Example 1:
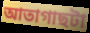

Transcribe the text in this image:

আতাগাছটা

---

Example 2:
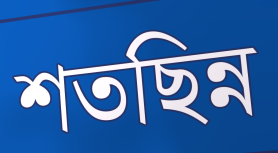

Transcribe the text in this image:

শতছিন্ন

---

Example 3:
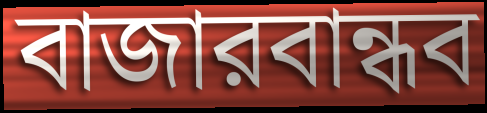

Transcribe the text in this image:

বাজারবান্ধব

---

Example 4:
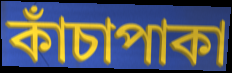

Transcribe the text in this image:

কাঁচাপাকা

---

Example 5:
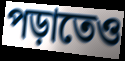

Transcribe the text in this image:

পড়াতেও